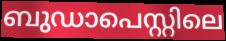
ബുഡാപെസ്റ്റിലെ